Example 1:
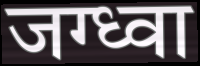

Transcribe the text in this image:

जग्ध्वा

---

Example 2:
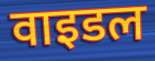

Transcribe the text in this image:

वाइडल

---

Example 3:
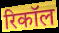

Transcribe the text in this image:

रिकॉल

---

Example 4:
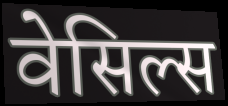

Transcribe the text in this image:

वेसिल्स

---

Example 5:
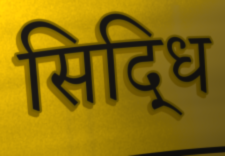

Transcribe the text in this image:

सिद्धि